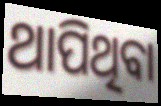
ଥାପିଥିବା